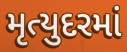
મૃત્યુદરમાં